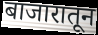
बाजारातून